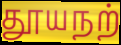
தூயநற்